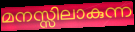
മനസ്സിലാകുന്ന